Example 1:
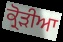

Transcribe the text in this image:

ਕ੍ਰੋੜੀਆ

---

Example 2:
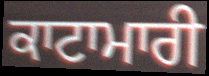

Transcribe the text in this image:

ਕਾਟਾਮਾਰੀ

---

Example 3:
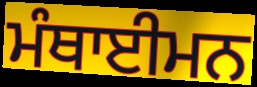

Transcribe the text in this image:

ਮੰਥਾਈਮਨ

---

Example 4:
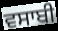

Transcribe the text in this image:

ਵਸਾਬੀ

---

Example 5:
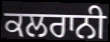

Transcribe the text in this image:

ਕਲਰਾਨੀ